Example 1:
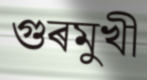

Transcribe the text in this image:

গুৰমুখী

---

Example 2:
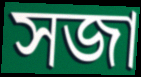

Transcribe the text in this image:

সজা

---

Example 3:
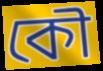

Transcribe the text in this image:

কৌ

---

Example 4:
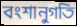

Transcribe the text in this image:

বংশানুগতি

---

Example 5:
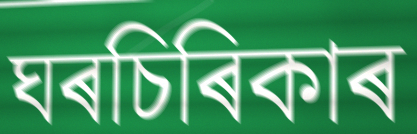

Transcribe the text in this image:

ঘৰচিৰিকাৰ